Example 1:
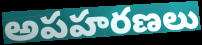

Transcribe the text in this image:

అపహరణలు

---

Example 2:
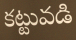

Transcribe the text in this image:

కట్టువడి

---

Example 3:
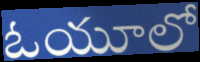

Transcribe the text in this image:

ఓయూలో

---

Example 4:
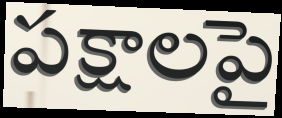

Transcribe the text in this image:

పక్షాలపై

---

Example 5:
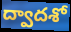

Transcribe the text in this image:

ద్వాదశో